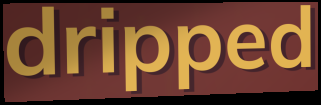
dripped